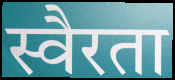
स्वैरता